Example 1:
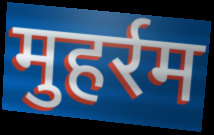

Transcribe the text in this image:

मुहर्रम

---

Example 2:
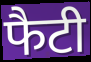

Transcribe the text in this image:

फैटी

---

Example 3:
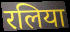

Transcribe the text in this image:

रलिया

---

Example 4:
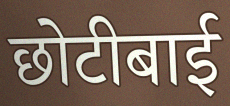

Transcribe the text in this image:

छोटीबाई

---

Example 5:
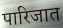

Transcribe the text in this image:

पारिजात